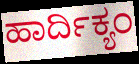
ಹಾರ್ದಿಕ್ಯಂ